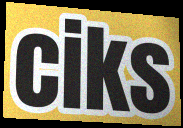
ciks